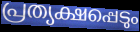
പ്രത്യക്ഷപ്പെടും